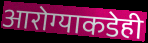
आरोग्याकडेही